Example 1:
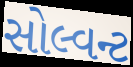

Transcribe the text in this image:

સોલ્વન્ટ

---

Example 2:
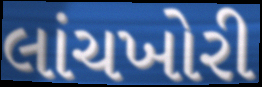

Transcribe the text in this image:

લાંચખોરી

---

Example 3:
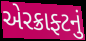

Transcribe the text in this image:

એરક્રાફ્ટનું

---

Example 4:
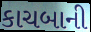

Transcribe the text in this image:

કાચબાની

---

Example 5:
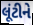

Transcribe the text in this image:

લૂંટીને